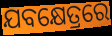
ଯବକ୍ଷେତ୍ରରେ